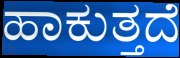
ಹಾಕುತ್ತದೆ